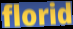
florid